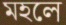
মহলে